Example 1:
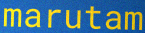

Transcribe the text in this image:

marutam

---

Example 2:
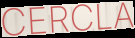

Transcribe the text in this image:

CERCLA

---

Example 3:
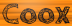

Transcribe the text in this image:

Coox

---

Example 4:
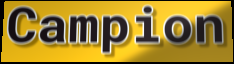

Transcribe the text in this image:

Campion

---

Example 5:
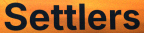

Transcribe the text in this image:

Settlers